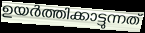
ഉയർത്തിക്കാട്ടുന്നത്